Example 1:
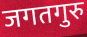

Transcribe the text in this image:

जगतगुरु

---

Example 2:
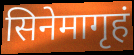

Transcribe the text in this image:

सिनेमागृहं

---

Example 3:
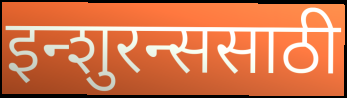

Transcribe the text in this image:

इन्शुरन्ससाठी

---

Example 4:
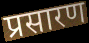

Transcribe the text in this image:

प्रसारण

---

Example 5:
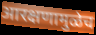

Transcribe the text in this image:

आरक्षणामुळेच